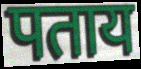
पताय